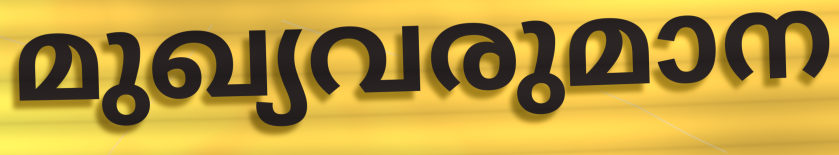
മുഖ്യവരുമാന